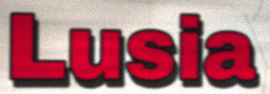
Lusia